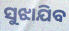
ସୁଝାଯିବ